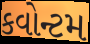
કવોન્ટમ